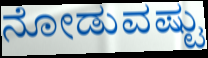
ನೋಡುವಷ್ಟು